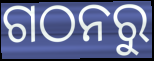
ଗଠନରୁ